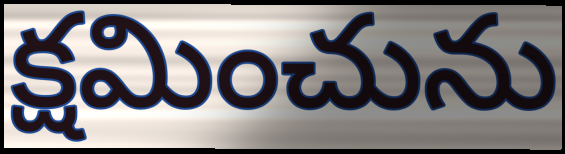
క్షమించును